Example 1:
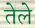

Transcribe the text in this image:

तेले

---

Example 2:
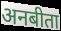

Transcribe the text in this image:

अनबीता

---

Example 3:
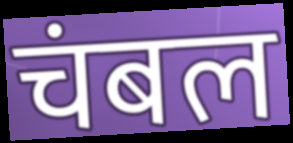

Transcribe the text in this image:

चंबल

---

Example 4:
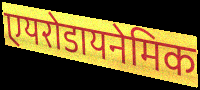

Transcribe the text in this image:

एयरोडायनेमिक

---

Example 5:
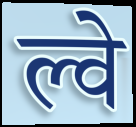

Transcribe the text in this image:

ल्वे